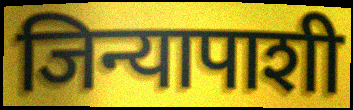
जिन्यापाशी